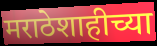
मराठेशाहीच्या